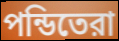
পন্ডিতেরা